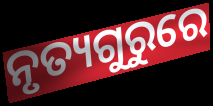
ନୃତ୍ୟଗୁରୁରେ